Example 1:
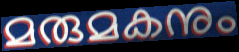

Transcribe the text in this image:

മരുമകനും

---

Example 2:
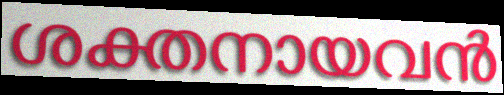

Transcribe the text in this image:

ശക്തനായവൻ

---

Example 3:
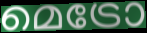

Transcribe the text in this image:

മെട്രോ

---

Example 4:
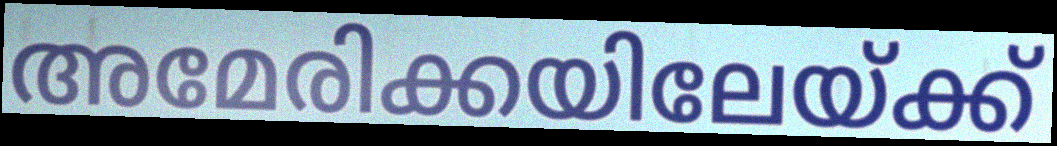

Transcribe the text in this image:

അമേരിക്കയിലേയ്ക്ക്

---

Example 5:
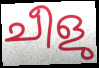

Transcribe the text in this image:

ചീളു